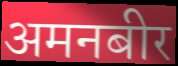
अमनबीर